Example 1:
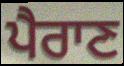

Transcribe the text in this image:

ਪੈਰਾਣ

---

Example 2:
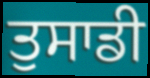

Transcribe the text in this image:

ਤੁਸਾਡੀ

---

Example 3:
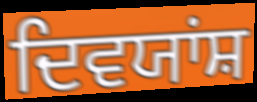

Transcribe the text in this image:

ਦਿਵਯਾਂਸ਼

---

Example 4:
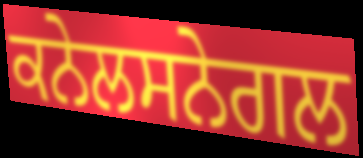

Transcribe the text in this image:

ਕਨੇਲਸਨੇਗਲ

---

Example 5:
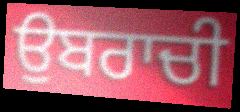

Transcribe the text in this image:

ਉਬਰਾਚੀ